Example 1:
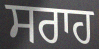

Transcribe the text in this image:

ਸਰਾਹ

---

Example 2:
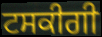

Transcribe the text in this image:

ਟਸਕੀਗੀ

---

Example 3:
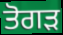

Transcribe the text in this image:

ਤੋਗੜ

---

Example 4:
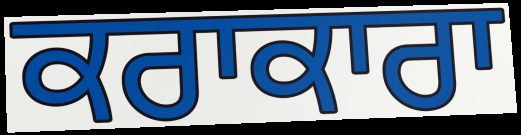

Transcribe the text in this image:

ਕਰਾਕਾਰਾ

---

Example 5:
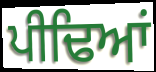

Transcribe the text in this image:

ਪੀਢਿਆਂ